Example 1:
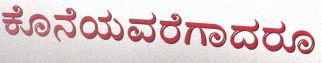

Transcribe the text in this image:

ಕೊನೆಯವರೆಗಾದರೂ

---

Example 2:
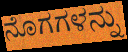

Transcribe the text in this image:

ನೊಗಗಳನ್ನು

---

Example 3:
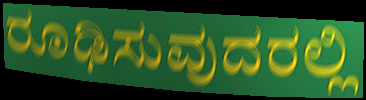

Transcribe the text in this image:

ರೂಢಿಸುವುದರಲ್ಲಿ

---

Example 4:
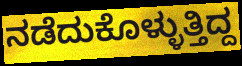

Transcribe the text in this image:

ನಡೆದುಕೊಳ್ಳುತ್ತಿದ್ದ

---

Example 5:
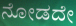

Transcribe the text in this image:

ನೋಡದೇ